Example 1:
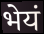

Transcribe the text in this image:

भेयं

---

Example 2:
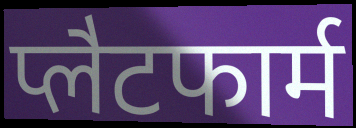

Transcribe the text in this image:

प्लैटफार्म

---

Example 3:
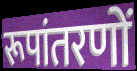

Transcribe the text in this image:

रूपांतरणों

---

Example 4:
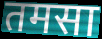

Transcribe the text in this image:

तमसा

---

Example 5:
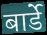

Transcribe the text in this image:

बार्डे